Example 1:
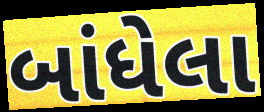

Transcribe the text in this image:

બાંધેલા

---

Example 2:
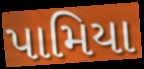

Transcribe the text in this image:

પામિયા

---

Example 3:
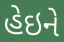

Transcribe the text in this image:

હેઇને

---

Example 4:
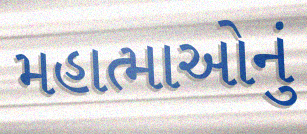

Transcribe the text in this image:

મહાત્માઓનું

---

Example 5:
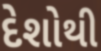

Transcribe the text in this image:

દેશોથી